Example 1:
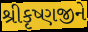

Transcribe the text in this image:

શ્રીકૃષ્ણજીને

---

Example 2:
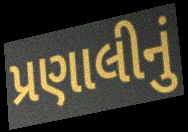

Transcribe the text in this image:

પ્રણાલીનું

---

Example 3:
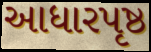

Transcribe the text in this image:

આધારપૃષ્ઠ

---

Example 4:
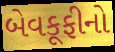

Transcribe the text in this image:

બેવકૂફીનો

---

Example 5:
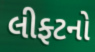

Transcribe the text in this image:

લીફ્ટનો